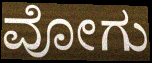
ವೋಗು